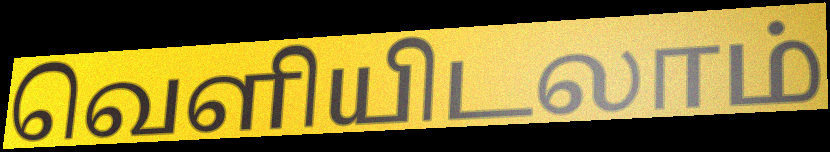
வெளியிடலாம்